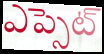
ఎప్సెట్